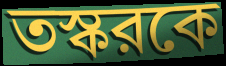
তস্করকে